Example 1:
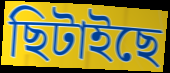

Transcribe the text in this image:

ছিটাইছে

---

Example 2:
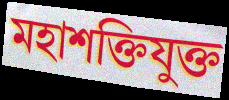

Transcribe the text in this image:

মহাশক্তিযুক্ত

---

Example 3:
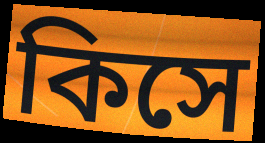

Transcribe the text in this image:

কিসে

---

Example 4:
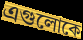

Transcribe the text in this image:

এগুলোকে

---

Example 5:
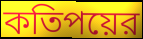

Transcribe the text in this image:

কতিপয়ের